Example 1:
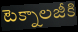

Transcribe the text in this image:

టెక్నాలజీకి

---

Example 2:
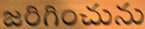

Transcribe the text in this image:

జరిగించును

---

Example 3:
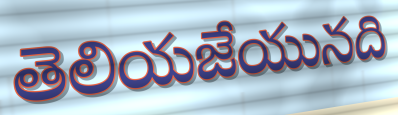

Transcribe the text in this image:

తెలియజేయునది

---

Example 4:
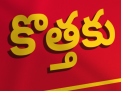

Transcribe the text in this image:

కొత్తకు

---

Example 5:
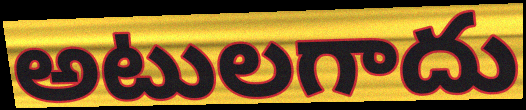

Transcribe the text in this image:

అటులగాదు